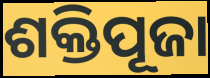
ଶକ୍ତିପୂଜା